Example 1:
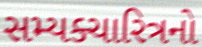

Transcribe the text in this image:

સમ્યક્ચારિત્રનો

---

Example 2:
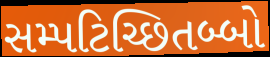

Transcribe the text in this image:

સમ્પટિચ્છિતબ્બો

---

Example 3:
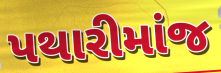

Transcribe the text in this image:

પથારીમાંજ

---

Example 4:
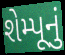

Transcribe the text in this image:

શેમ્પૂનું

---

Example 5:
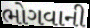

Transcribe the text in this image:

ભોગવાની